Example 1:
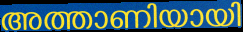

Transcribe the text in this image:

അത്താണിയായി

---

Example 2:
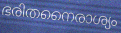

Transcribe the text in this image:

ഭരിതനൈരാശ്യം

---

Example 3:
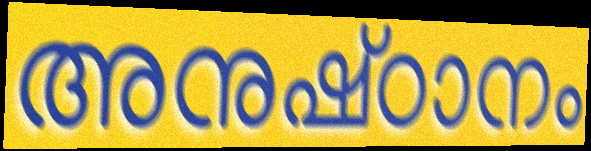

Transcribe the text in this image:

അനുഷ്‌ഠാനം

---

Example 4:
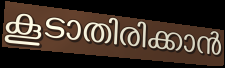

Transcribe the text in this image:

കൂടാതിരിക്കാൻ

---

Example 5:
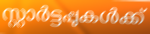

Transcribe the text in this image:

സ്റ്റാർട്ടപ്പുകൾക്ക്